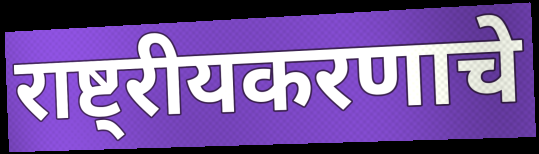
राष्ट्रीयकरणाचे